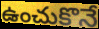
ఉంచుకొనే